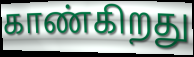
காண்கிறது